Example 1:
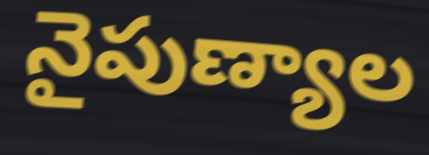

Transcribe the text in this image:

నైపుణ్యాల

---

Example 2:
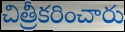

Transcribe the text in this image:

చిత్రీకరించారు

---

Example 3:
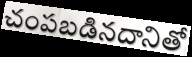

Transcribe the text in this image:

చంపబడినదానితో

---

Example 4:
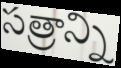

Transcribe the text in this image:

సత్రాన్ని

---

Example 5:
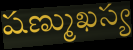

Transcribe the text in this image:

షణ్ముఖస్య